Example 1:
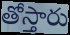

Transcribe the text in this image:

తోస్తారు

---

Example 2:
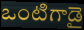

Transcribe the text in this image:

ఒంటిగాడై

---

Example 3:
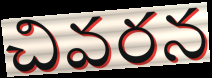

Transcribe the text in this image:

చివరన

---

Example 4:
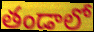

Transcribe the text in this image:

తండాలో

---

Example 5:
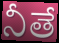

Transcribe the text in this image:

నీతే